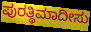
ಪುರತ್ಥಿಮಾದೀಸು